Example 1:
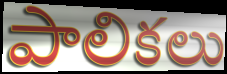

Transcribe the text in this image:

పాలికలు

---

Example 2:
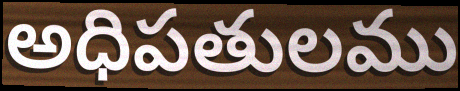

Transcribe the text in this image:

అధిపతులము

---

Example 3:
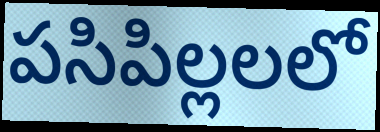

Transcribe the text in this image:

పసిపిల్లలలో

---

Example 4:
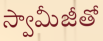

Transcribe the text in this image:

స్వామీజీతో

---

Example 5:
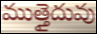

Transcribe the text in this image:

ముత్తైదువు